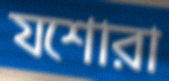
যশোরা